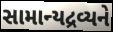
સામાન્યદ્રવ્યને